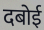
दबोई